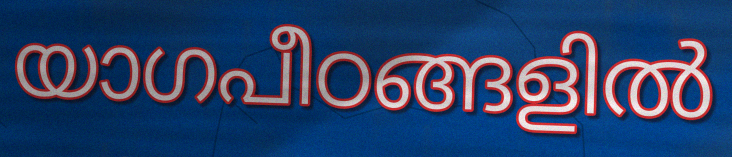
യാഗപീഠങ്ങളിൽ